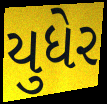
યુધેર